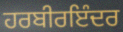
ਹਰਬੀਰਇੰਦਰ